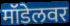
मॉडेलवर